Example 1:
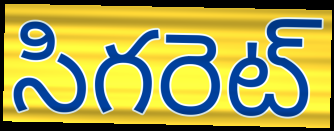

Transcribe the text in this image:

సిగరెట్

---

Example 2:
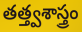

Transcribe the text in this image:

తత్త్వశాస్త్రం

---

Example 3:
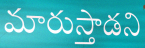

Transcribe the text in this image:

మారుస్తాడని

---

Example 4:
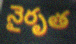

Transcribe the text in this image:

నైరృత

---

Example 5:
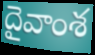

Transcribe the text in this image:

దైవాంశ